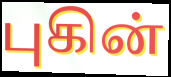
புகின்